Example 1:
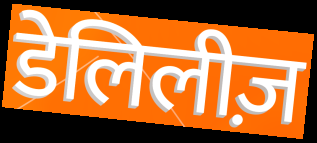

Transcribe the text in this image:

डेलिलीज़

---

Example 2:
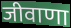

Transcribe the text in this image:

जीवाणा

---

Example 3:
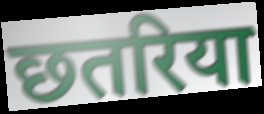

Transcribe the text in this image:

छतरिया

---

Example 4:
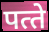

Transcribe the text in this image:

पत्‍ते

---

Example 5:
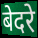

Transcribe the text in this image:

बेदरे